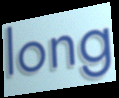
long